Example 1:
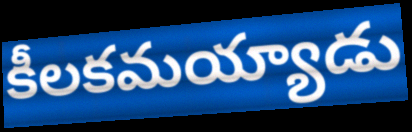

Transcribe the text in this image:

కీలకమయ్యాడు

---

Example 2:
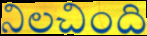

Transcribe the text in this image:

నిలచింది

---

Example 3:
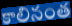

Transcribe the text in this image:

కాలినంత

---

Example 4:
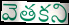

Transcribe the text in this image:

వెతకని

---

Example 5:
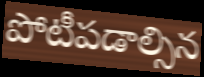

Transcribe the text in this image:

పోటీపడాల్సిన